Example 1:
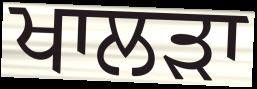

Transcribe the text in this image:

ਖਾਲੜਾ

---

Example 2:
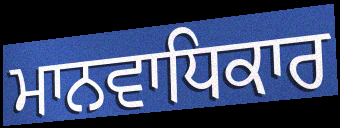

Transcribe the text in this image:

ਮਾਨਵਾਧਿਕਾਰ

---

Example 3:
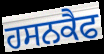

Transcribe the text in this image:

ਹਸਨਕੈਫ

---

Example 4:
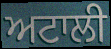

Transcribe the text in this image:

ਅਟਾਲੀ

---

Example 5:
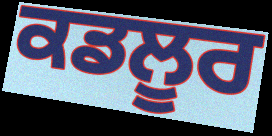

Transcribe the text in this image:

ਕਡਲੂਰ